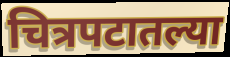
चित्रपटातल्या